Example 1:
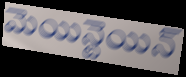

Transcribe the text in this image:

మెయిన్టెయిన్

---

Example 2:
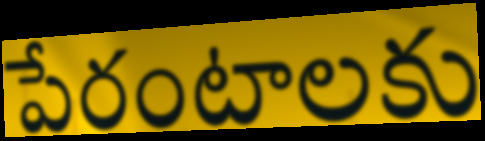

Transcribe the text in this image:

పేరంటాలకు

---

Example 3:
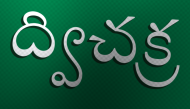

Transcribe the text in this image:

ద్విచక్ర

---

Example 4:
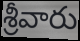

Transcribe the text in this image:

శ్రీవారు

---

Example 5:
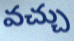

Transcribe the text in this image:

వచ్చు